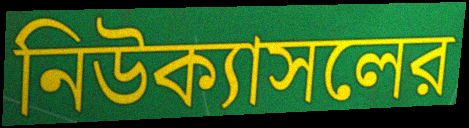
নিউক্যাসলের